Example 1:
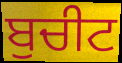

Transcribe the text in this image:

ਬੁਚੀਟ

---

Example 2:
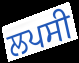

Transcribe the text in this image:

ਲਪਸੀ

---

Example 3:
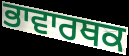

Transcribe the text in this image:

ਭਾਵਾਰਥਕ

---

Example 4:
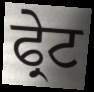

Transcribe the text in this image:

ਫ੍ਰੇਟ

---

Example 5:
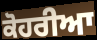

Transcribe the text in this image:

ਕੋਹਰੀਆ